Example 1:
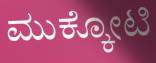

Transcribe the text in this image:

ಮುಕ್ಕೋಟಿ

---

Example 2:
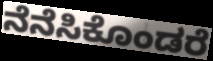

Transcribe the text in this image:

ನೆನೆಸಿಕೊಂಡರೆ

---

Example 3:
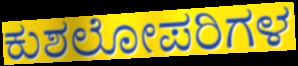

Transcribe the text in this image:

ಕುಶಲೋಪರಿಗಳ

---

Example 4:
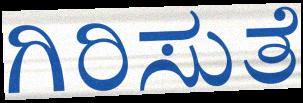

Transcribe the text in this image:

ಗಿರಿಸುತೆ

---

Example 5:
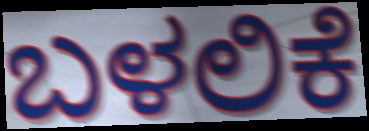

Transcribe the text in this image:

ಬಳಲಿಕೆ